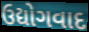
ઉદ્યોગવાદ